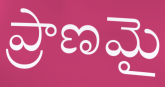
ప్రాణమై